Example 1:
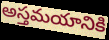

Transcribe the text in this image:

అస్తమయానికి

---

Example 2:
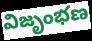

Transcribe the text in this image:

విజృంభణ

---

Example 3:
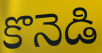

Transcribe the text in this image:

కొనెడి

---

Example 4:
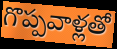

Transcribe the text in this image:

గొప్పవాళ్లతో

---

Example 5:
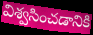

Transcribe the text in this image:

విశ్వసించడానికి